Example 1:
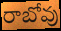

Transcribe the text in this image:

రాబోవు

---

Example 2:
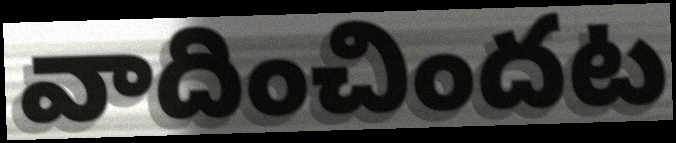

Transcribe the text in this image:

వాదించిందట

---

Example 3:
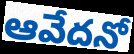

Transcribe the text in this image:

ఆవేదనో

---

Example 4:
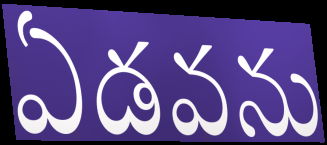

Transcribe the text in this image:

ఏడవను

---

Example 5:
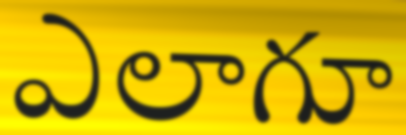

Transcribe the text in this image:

ఎలాగూ